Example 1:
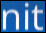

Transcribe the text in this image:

nit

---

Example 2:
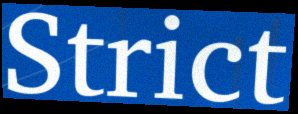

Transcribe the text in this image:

Strict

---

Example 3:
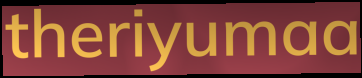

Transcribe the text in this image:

theriyumaa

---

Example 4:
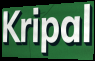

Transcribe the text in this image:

Kripal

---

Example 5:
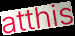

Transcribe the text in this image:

atthis